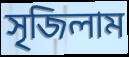
সৃজিলাম